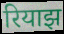
रियाझ